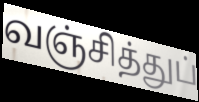
வஞ்சித்துப்